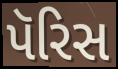
પૅરિસ